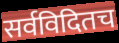
सर्वविदितच